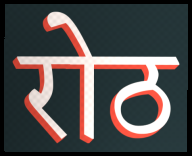
रोठ